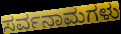
ಸರ್ವನಾಮಗಳು